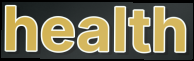
health